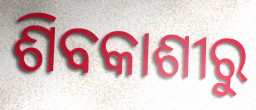
ଶିବକାଶୀରୁ